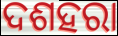
ଦଶହରା